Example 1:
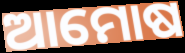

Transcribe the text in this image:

ଆମୋଷ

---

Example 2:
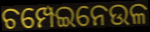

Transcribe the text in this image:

ଚମ୍ପେଇନେଉଳ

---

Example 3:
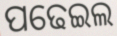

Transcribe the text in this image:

ପଢେଇଲ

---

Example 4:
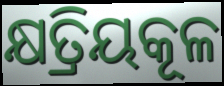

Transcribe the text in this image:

କ୍ଷତ୍ରିୟକୂଳ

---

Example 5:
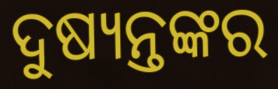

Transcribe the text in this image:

ଦୁଷ୍ୟନ୍ତଙ୍କର